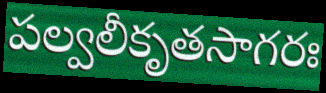
పల్వలీకృతసాగరః